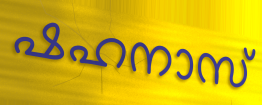
ഷഹനാസ്